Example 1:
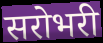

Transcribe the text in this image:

सरोभरी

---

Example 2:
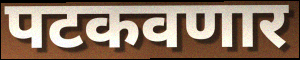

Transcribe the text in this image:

पटकवणार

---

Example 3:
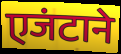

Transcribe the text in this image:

एजंटाने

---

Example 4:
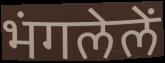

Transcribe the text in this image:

भंगलेलें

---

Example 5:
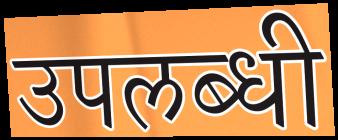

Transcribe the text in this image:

उपलब्धी